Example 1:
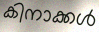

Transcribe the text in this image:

കിനാക്കൾ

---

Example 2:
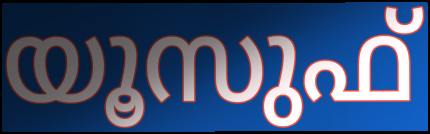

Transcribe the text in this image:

യൂസുഫ്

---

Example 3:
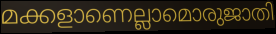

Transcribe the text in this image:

മക്കളാണെല്ലാമൊരുജാതി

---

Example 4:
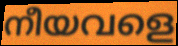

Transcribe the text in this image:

നീയവളെ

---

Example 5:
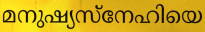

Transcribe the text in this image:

മനുഷ്യസ്നേഹിയെ